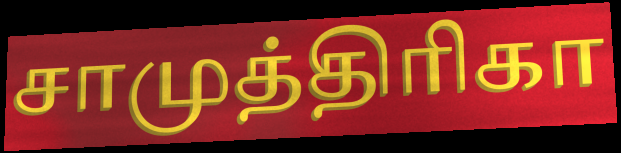
சாமுத்திரிகா